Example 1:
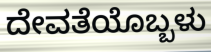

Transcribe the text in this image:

ದೇವತೆಯೊಬ್ಬಳು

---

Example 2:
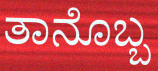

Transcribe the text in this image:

ತಾನೊಬ್ಬ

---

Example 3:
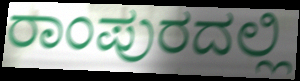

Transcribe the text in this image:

ರಾಂಪುರದಲ್ಲಿ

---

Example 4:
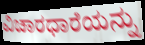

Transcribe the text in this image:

ವಿಚಾರಧಾರೆಯನ್ನು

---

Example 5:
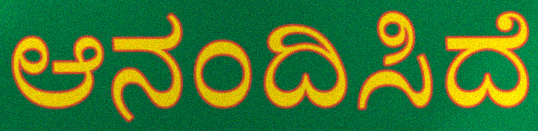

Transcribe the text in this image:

ಆನಂದಿಸಿದೆ